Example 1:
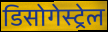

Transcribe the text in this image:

डिसोगेस्ट्रेल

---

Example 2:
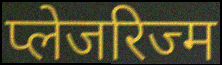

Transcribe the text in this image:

प्लेजरिज्म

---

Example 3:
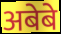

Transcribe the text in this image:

अबेबे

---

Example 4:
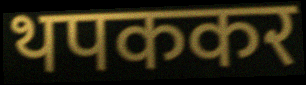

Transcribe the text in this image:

थपककर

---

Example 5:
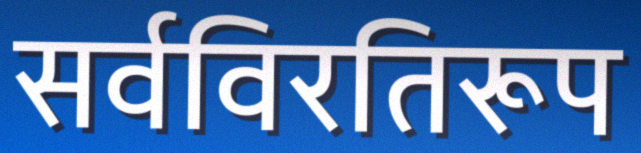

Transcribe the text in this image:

सर्वविरतिरूप